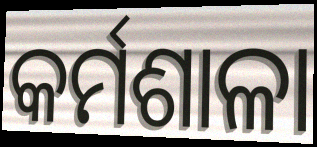
କର୍ମଶାଳା